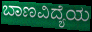
ಬಾಣವಿದ್ಯೆಯ